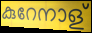
കുറേനാള്